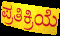
ಪ್ರತಿಕ್ರಿಯೆ